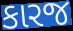
કારજ